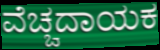
ವೆಚ್ಚದಾಯಕ